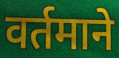
वर्तमाने